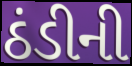
ઠંડીની